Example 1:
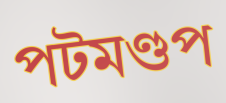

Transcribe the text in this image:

পটমণ্ডপ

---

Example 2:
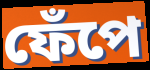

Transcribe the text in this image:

ফেঁপে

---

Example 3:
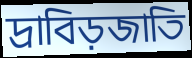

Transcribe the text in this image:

দ্রাবিড়জাতি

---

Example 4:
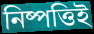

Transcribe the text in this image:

নিষ্পত্তিই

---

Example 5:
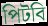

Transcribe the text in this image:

পিটবি